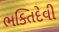
ભક્તિદેવી